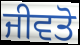
ਜੀਵਤੋ